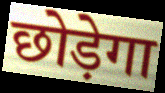
छोड़ेगा